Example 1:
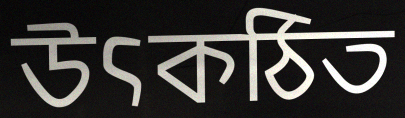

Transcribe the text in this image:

উৎকঠিত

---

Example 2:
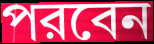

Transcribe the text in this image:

পরবেন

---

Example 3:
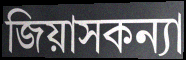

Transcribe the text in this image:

জিয়াসকন্যা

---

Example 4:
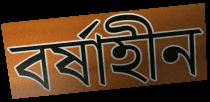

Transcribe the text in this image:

বর্ষাহীন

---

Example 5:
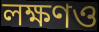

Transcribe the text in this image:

লক্ষণও